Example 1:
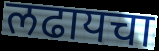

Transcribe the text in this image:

लढायचा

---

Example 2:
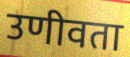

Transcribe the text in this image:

उणीवता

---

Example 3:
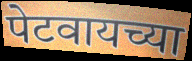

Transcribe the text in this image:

पेटवायच्या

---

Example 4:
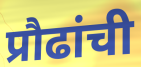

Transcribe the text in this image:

प्रौढांची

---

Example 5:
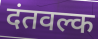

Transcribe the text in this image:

दंतवल्क